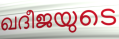
ഖദീജയുടെ